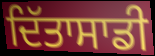
ਦਿੱਤਾਸਾਡੀ